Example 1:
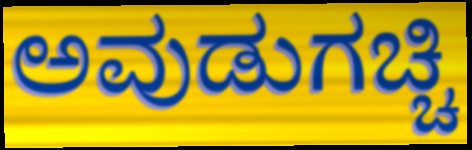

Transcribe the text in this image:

ಅವುಡುಗಚ್ಚಿ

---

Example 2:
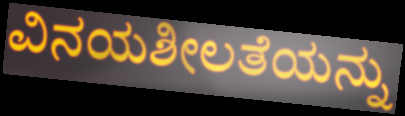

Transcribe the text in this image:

ವಿನಯಶೀಲತೆಯನ್ನು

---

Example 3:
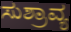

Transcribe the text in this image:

ಸುಶ್ರಾವ್ಯ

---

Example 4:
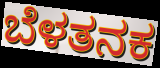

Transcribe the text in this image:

ಬೆಳತನಕ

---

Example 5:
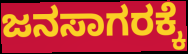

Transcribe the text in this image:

ಜನಸಾಗರಕ್ಕೆ